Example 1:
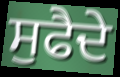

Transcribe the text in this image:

ਸੁਫੈਦੇ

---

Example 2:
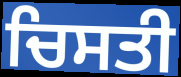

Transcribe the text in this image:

ਚਿਸਤੀ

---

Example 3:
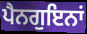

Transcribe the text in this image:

ਪੈਨਗੁਇਨਾਂ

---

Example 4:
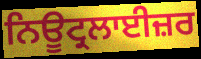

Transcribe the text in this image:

ਨਿਊਟ੍ਰਲਾਈਜ਼ਰ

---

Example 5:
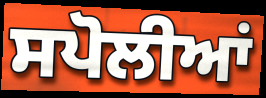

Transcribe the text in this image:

ਸਪੋਲੀਆਂ